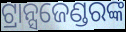
ଟ୍ରାନ୍ସଜେଣ୍ଡରଙ୍କ